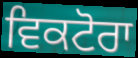
ਵਿਕਟੋਰਾ